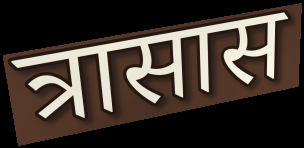
त्रासास